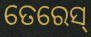
ତେରେସ୍